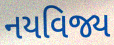
નયવિજ્ય